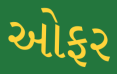
ઓફર